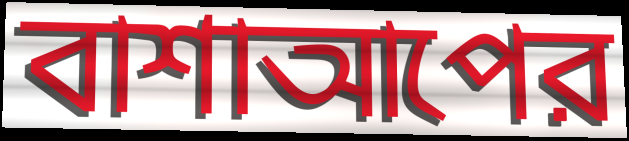
বাশাআপের